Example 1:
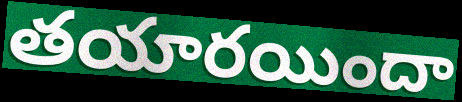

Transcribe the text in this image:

తయారయిందా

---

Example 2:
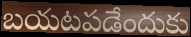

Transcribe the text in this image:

బయటపడేందుకు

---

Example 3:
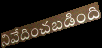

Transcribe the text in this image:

నివేదించబడింది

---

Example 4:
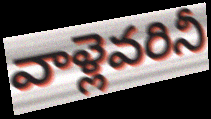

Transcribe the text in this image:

వాళ్లెవరినీ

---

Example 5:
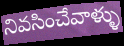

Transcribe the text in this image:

నివసించేవాళ్ళు